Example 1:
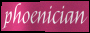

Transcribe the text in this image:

phoenician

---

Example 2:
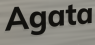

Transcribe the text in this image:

Agata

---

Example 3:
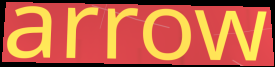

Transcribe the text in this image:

arrow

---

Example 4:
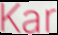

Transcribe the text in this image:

Kar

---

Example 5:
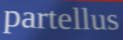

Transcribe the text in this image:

partellus